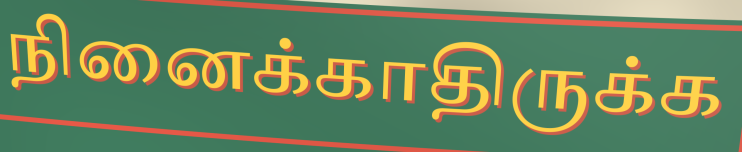
நினைக்காதிருக்க